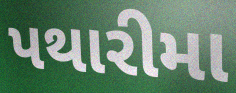
પથારીમા